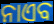
ନାଏବ